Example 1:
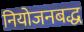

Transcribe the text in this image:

नियोजनबद्ध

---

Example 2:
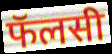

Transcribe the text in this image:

फॅलसी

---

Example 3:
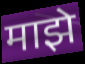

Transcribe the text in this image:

माझे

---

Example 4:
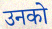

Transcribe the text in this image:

उनको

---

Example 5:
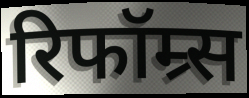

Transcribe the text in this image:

रिफॉम्र्स